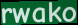
rwako